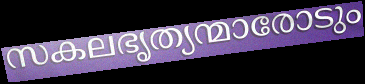
സകലഭൃത്യന്മാരോടും